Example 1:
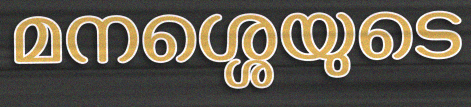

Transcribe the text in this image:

മനശ്ശെയുടെ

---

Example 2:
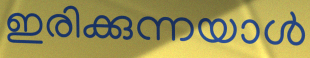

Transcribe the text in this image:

ഇരിക്കുന്നയാൾ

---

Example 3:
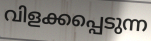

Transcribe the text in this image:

വിളക്കപ്പെടുന്ന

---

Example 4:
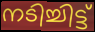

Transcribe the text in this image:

നടിച്ചിട്ട്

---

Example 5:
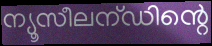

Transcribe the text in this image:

ന്യൂസീലന്ഡിന്റെ